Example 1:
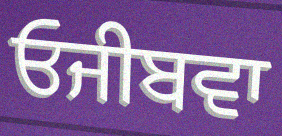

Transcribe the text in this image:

ਓਜੀਬਵਾ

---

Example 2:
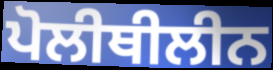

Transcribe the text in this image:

ਪੋਲੀਥੀਲੀਨ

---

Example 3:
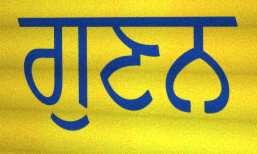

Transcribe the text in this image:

ਗੁਣਨ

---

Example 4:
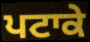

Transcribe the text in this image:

ਪਟਾਕੇ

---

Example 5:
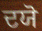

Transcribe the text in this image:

ਦਯੋ